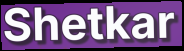
Shetkar